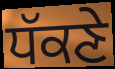
ਧੱਕਣੇ